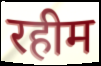
रहीम